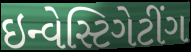
ઇન્વેસ્ટિગેટીંગ